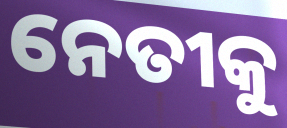
ନେତୀକୁ